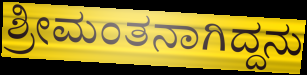
ಶ್ರೀಮಂತನಾಗಿದ್ದನು